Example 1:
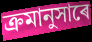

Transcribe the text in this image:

ক্ৰমানুসাৰে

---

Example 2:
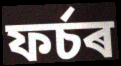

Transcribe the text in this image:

ফৰ্চৰ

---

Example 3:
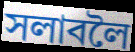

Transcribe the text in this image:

সলাবলৈ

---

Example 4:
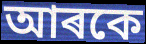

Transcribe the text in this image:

আৰকে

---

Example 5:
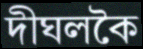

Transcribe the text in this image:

দীঘলকৈ